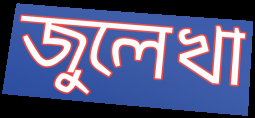
জুলেখা